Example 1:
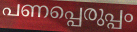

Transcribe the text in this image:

പണപ്പെരുപ്പം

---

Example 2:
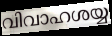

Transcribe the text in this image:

വിവാഹശയ്യ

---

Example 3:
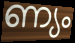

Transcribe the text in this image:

ണ്യം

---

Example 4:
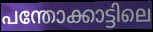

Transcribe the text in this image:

പന്തോക്കാട്ടിലെ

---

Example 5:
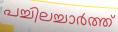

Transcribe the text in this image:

പച്ചിലച്ചാർത്ത്